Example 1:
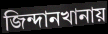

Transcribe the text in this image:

জিন্দানখানায়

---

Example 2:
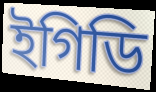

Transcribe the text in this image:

ইগিডি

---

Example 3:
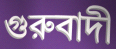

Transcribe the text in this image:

গুরুবাদী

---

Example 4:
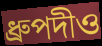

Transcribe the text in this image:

ধ্রুপদীও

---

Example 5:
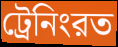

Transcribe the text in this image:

ট্রেনিংরত